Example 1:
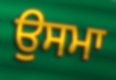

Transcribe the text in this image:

ਉਸਮਾ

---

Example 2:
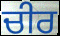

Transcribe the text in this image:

ਚੀਰ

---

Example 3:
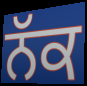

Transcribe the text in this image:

ਨੱਕ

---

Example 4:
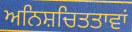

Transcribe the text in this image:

ਅਨਿਸ਼ਚਿਤਤਾਵਾਂ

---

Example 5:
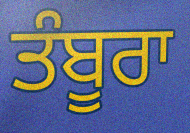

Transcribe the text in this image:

ਤੰਬੂਰਾ